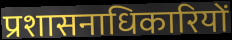
प्रशासनाधिकारियों